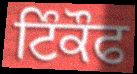
ਟਿੰਕੌਫ